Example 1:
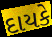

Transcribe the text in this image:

દાયકે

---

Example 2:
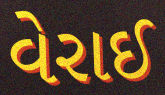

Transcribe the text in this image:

વેરાઈ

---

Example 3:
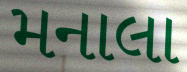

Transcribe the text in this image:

મનાલા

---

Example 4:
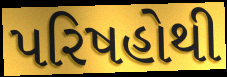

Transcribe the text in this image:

પરિષહોથી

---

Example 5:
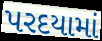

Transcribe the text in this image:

પરદયામાં